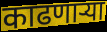
काढणार्‍या